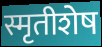
स्मृतीशेष